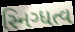
સ્નિગ્ધત્વ